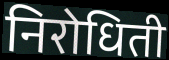
निरोधिती